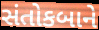
સંતોકબાને